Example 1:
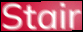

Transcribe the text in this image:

Stair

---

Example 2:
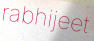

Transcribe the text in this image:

rabhijeet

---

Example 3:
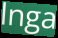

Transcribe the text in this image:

lnga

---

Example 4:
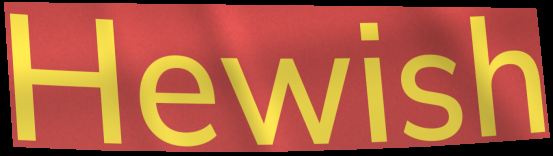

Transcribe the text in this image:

Hewish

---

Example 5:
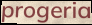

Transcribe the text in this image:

progeria